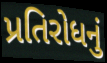
પ્રતિરોધનું